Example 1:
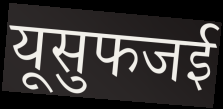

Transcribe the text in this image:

यूसुफजई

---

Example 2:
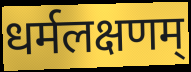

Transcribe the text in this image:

धर्मलक्षणम्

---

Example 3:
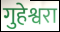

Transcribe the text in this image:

गुहेश्वरा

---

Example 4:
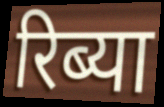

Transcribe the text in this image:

रिब्या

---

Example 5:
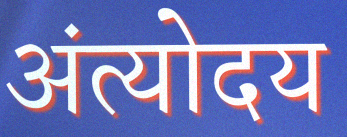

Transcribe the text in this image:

अंत्योदय